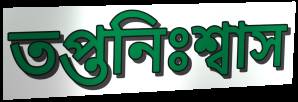
তপ্তনিঃশ্বাস